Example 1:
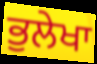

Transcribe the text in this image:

ਭੁਲੇਖਾ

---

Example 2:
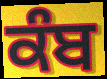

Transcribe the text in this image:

ਕੰਬ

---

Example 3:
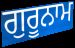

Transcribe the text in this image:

ਗੁਰੂਨਾਮ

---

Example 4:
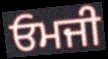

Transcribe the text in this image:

ਓਮਜੀ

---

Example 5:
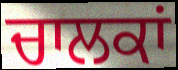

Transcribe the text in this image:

ਚਾਲਕਾਂ